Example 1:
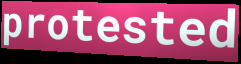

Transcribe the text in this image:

protested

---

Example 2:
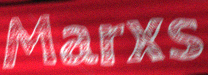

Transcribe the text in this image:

Marxs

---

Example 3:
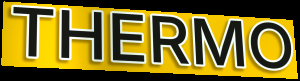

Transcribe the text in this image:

THERMO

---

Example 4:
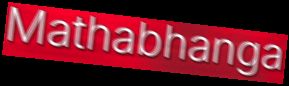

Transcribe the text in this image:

Mathabhanga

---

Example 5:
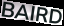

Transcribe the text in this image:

BAIRD